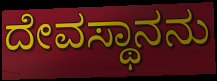
ದೇವಸ್ಥಾನನು